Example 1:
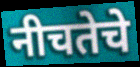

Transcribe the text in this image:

नीचतेचे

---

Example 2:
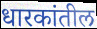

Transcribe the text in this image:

धारकांतील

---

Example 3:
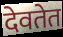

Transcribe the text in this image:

देवतेत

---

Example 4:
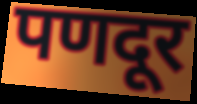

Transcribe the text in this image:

पणदूर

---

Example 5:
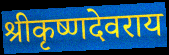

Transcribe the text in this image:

श्रीकृष्णदेवराय